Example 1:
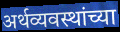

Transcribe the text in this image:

अर्थव्यवस्थांच्या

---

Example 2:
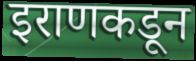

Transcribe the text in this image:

इराणकडून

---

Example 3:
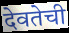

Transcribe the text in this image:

देवतेची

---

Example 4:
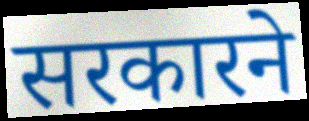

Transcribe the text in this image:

सरकारने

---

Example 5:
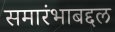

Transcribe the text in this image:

समारंभाबद्दल